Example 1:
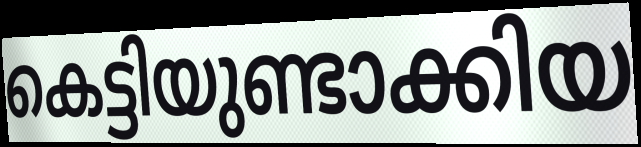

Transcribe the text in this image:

കെട്ടിയുണ്ടാക്കിയ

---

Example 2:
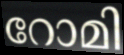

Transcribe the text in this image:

റോമി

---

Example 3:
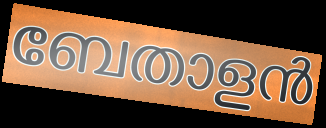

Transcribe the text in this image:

ബേതാളൻ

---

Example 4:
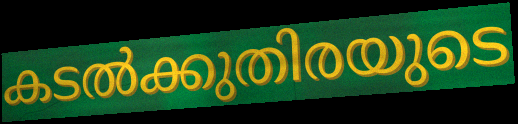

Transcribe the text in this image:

കടൽക്കുതിരയുടെ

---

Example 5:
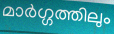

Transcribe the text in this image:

മാർഗ്ഗത്തിലും